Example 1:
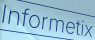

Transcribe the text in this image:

Informetix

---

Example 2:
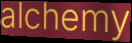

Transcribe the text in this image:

alchemy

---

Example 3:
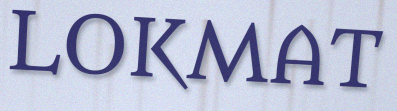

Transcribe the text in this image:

LOKMAT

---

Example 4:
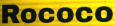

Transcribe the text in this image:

Rococo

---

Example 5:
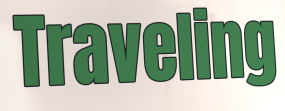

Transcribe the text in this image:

Traveling